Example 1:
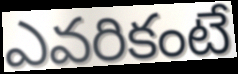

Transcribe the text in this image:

ఎవరికంటే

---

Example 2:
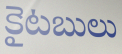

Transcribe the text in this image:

కైటబులు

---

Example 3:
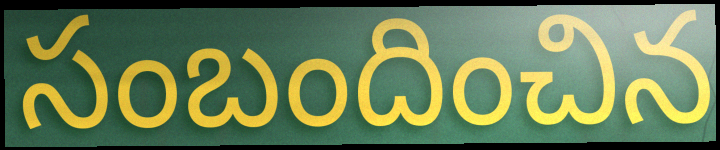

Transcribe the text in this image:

సంబందించిన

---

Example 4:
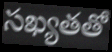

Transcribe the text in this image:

సఖ్యతతో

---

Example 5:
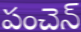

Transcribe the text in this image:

పంచెన్